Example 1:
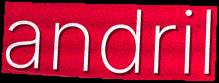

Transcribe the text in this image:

andril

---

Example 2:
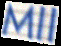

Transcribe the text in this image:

MII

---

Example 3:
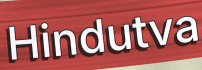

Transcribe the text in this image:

Hindutva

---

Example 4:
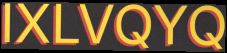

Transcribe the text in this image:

IXLVQYQ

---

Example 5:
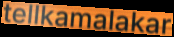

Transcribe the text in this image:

tellkamalakar